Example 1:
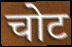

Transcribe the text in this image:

चोट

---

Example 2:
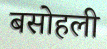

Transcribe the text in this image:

बसोहली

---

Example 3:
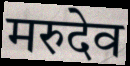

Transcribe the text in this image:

मरुदेव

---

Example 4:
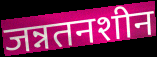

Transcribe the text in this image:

जन्नतनशीन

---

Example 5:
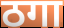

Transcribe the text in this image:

ठगा